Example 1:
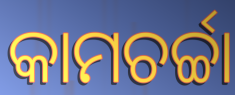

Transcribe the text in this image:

କାମଚର୍ଚ୍ଚା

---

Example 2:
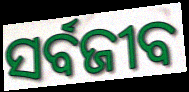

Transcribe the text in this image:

ସର୍ବଜୀବ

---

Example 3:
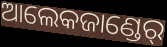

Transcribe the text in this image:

ଆଲେକଜାଣ୍ଡେର୍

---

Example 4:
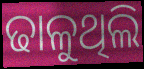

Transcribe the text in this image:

ଢାଳୁଥିଲି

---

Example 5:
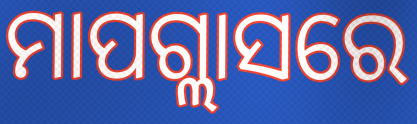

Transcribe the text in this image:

ମାପଗ୍ଲାସରେ